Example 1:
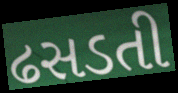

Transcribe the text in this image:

ઢસડતી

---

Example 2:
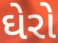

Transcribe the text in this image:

ઘેરો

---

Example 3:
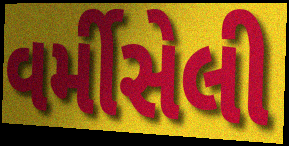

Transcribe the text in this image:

વર્મીસેલી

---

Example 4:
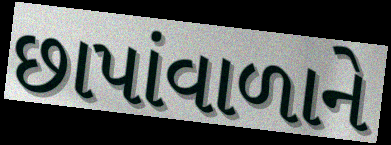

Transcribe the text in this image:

છાપાંવાળાને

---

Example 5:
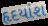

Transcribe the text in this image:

હૃદયાંશ